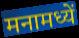
मनामध्यें